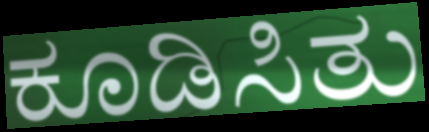
ಕೂಡಿಸಿತು